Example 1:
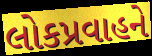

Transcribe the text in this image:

લોકપ્રવાહને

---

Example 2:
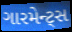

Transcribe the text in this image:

ગારમેન્ટ્સ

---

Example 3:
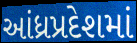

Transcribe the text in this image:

આંધ્રપ્રદેશમાં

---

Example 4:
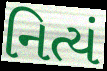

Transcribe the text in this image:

નિત્યં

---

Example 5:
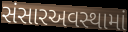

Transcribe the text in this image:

સંસારઅવસ્થામાં